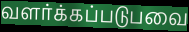
வளர்க்கப்படுபவை